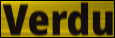
Verdu